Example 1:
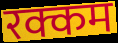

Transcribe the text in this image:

रक्कम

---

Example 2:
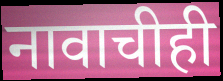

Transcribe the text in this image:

नावाचीही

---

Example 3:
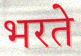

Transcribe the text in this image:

भरते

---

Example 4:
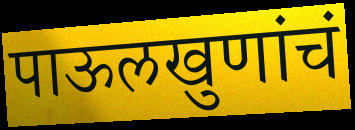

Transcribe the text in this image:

पाऊलखुणांचं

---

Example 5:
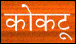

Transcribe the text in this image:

कोकटू